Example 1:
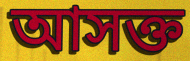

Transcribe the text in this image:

আসক্ত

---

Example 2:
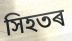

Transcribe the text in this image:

সিহতৰ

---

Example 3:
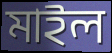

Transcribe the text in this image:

মাইল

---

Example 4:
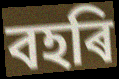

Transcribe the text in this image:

বহৰি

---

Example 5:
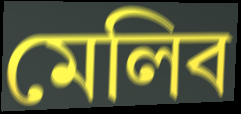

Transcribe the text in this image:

মেলিব